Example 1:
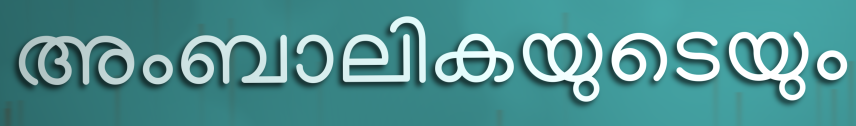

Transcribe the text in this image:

അംബാലികയുടെയും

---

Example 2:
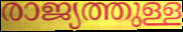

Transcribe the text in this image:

രാജ്യത്തുള്ള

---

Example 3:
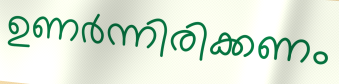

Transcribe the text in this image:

ഉണർന്നിരിക്കണം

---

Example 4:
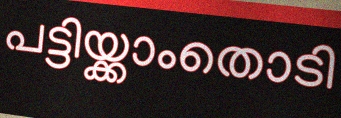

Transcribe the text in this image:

പട്ടിയ്ക്കാംതൊടി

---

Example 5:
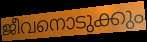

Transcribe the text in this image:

ജീവനൊടുക്കും